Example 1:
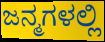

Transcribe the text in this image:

ಜನ್ಮಗಳಲ್ಲಿ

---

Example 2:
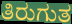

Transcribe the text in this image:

ತಿರುಗುತ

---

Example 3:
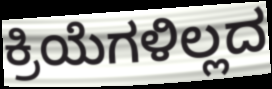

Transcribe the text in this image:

ಕ್ರಿಯೆಗಳಿಲ್ಲದ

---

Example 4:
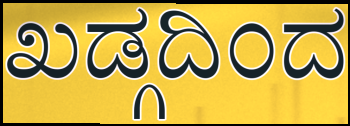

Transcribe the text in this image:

ಖಡ್ಗದಿಂದ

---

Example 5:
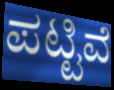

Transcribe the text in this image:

ಪಟ್ಟಿವೆ